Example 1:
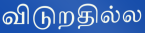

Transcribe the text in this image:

விடுறதில்ல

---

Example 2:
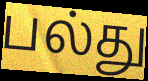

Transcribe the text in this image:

பல்து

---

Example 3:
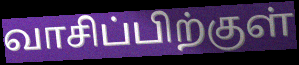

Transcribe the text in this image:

வாசிப்பிற்குள்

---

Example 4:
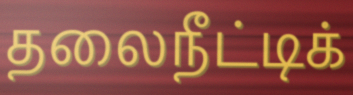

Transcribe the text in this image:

தலைநீட்டிக்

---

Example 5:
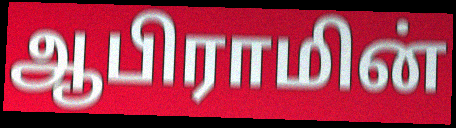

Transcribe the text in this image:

ஆபிராமின்